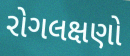
રોગલક્ષણો